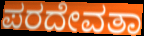
ಪರದೇವತಾ